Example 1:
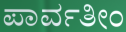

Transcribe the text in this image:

ಪಾರ್ವತೀಂ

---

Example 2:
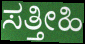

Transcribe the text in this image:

ಸತ್ತೀಹಿ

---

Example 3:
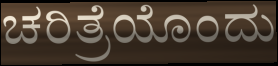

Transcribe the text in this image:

ಚರಿತ್ರೆಯೊಂದು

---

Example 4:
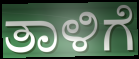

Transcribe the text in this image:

ತಾಳಿಗೆ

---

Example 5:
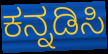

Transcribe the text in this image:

ಕನ್ನಡಿಸಿ